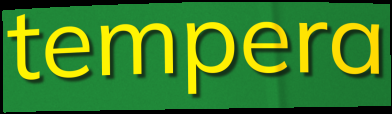
tempera